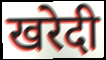
खरेदी